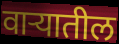
वाऱ्यातील